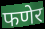
फणेर